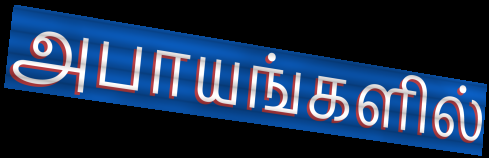
அபாயங்களில்